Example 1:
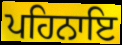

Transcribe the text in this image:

ਪਹਿਨਾਇ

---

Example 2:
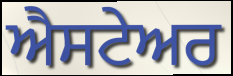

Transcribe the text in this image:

ਐਸਟੇਅਰ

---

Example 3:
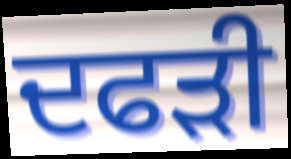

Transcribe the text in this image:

ਦਫੜੀ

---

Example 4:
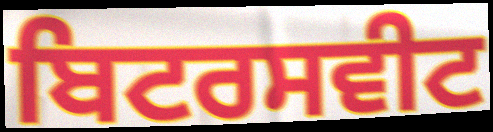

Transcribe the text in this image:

ਬਿਟਰਸਵੀਟ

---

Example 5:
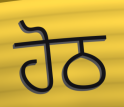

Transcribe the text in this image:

ਹੋਠ